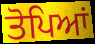
ਤੋਪਿਆਂ